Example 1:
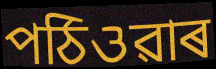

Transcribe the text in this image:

পঠিওৱাৰ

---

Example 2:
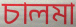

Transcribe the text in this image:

চালমা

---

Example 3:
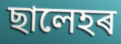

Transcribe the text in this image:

ছালেহৰ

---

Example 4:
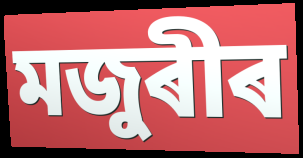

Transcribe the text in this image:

মজুৰীৰ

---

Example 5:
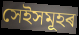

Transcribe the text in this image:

সেইসমূহৰ